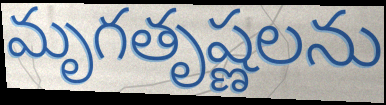
మృగతృష్ణలను